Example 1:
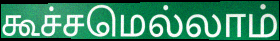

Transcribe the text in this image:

கூச்சமெல்லாம்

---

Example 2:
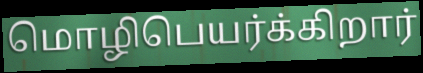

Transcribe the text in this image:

மொழிபெயர்க்கிறார்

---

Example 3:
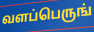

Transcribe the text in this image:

வளப்பெருங்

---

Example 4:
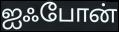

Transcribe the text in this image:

ஐஃபோன்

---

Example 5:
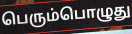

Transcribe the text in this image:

பெரும்பொழுது